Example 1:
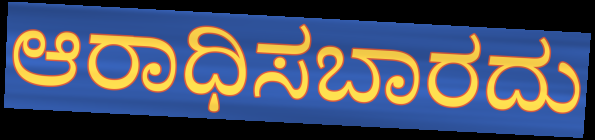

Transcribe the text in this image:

ಆರಾಧಿಸಬಾರದು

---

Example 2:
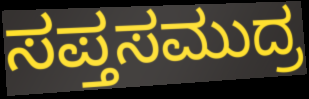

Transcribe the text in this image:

ಸಪ್ತಸಮುದ್ರ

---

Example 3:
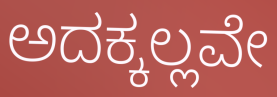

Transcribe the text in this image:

ಅದಕ್ಕಲ್ಲವೇ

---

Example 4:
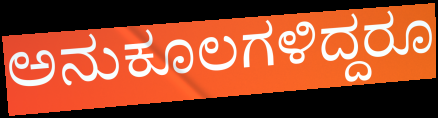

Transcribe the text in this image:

ಅನುಕೂಲಗಳಿದ್ದರೂ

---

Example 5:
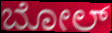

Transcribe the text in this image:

ಬೋಲ್